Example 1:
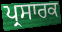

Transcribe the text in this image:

ਪ੍ਰਸਾਰਕ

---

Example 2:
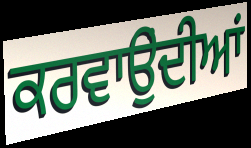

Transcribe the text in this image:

ਕਰਵਾਉੁਂਦੀਆਂ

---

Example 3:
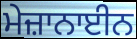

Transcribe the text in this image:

ਮੇਜ਼ਾਨਾਈਨ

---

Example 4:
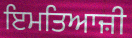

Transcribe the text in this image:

ਇਮਤਿਆਜ਼ੀ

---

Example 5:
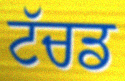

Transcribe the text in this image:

ਟੱਚਡ